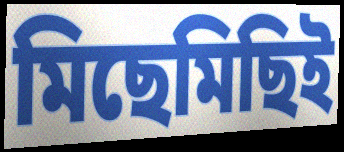
মিছেমিছিই